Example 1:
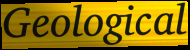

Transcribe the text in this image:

Geological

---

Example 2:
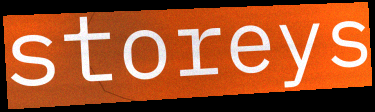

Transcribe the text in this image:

storeys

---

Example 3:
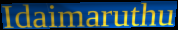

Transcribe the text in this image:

Idaimaruthu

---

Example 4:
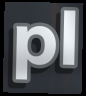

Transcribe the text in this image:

pl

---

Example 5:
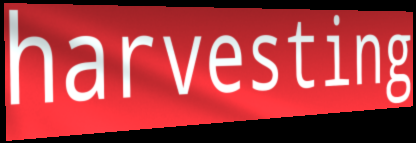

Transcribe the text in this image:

harvesting